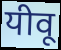
यीवू